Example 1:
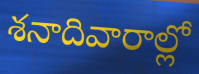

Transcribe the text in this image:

శనాదివారాల్లో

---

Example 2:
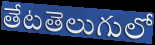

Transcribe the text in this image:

తేటతెలుగులో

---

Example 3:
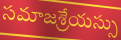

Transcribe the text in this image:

సమాజశ్రేయస్సు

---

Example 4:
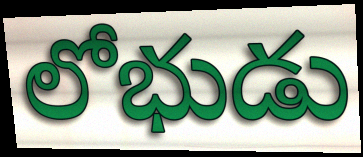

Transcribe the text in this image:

లోభుడు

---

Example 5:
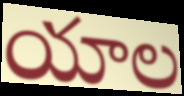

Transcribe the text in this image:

యాల